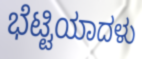
ಭೆಟ್ಟಿಯಾದಳು